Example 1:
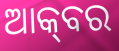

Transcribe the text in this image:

ଆକ୍‌ବର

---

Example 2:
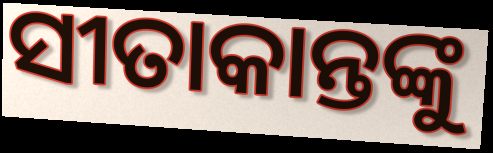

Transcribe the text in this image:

ସୀତାକାନ୍ତଙ୍କୁ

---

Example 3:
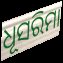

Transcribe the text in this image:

ଧୂସରିମା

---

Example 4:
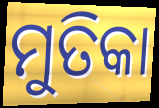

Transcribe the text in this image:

ମୁତିକା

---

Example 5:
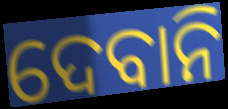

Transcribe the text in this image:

ଦେବାନି